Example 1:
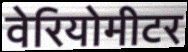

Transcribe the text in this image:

वेरियोमीटर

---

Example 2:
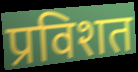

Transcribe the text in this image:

प्रविशत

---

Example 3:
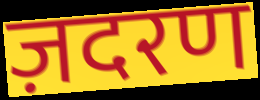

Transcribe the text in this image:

ज़दरण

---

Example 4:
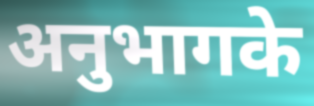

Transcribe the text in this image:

अनुभागके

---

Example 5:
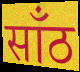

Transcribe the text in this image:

साँठ